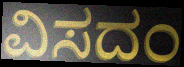
ವಿಸದಂ